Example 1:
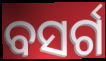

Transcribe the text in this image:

ବସର୍ଗ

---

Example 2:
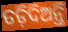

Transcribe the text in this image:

ତଡ଼ିଦିଅନ୍ତି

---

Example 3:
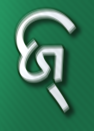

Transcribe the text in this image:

ଜ୍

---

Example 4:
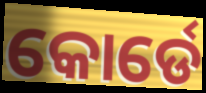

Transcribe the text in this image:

କୋର୍ଡେ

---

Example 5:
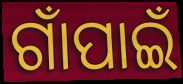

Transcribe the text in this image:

ଗାଁପାଇଁ